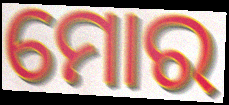
ମୋର